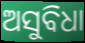
ଅସୁବିଧା